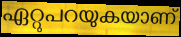
ഏറ്റുപറയുകയാണ്